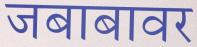
जबाबावर